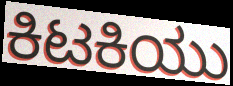
ಕಿಟಕಿಯು